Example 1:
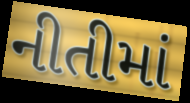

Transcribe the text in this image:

નીતીમાં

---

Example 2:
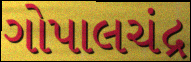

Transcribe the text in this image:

ગોપાલચંદ્ર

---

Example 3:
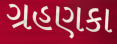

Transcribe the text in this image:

ગ્રહણકા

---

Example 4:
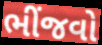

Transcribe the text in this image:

ભીંજવો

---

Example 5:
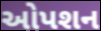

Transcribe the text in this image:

ઓપશન